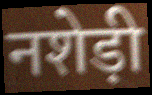
नशेड़ी